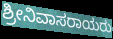
ಶ್ರೀನಿವಾಸರಾಯರು